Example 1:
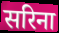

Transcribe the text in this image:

सरिना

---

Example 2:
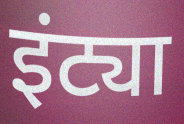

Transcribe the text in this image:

इंट्या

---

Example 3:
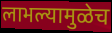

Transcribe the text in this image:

लाभल्यामुळेच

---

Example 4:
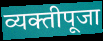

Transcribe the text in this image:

व्यक्तीपूजा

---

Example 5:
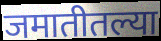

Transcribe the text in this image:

जमातीतल्या